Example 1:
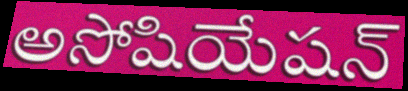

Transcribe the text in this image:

అసోషియేషన్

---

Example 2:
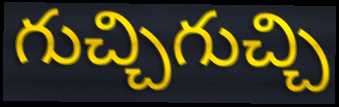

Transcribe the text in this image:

గుచ్చిగుచ్చి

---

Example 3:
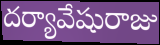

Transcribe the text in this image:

దర్యావేషురాజు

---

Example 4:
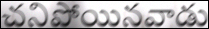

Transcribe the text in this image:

చనిపోయినవాడు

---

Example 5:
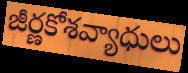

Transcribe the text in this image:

జీర్ణకోశవ్యాధులు